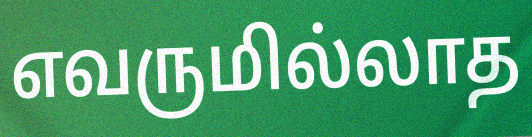
எவருமில்லாத